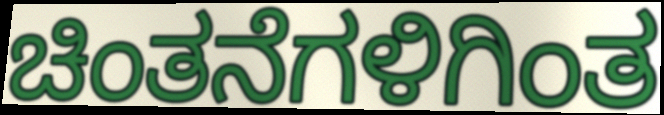
ಚಿಂತನೆಗಳಿಗಿಂತ